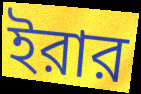
ইরার